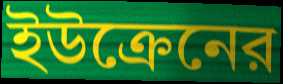
ইউক্রেনের